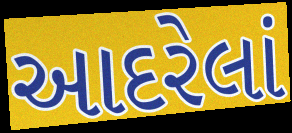
આદરેલાં